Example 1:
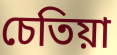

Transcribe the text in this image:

চেতিয়া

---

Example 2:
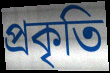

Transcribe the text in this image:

প্ৰকৃতি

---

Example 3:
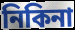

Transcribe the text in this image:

নিকিনা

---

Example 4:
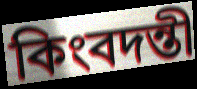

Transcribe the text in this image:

কিংবদন্তী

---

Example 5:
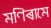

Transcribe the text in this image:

মণিৰামে